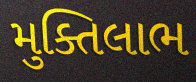
મુક્તિલાભ